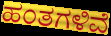
ಹಂತಗಳಿವೆ